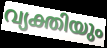
വ്യക്തിയും